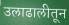
उलाढालीतून